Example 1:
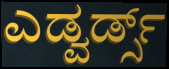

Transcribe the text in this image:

ಎಡ್ವರ್ಡ್ಸ್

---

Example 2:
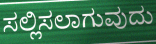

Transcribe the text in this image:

ಸಲ್ಲಿಸಲಾಗುವುದು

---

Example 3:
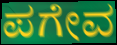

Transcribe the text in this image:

ಪಗೇವ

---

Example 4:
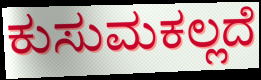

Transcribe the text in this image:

ಕುಸುಮಕಲ್ಲದೆ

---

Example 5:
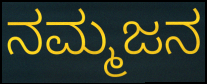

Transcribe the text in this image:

ನಮ್ಮಜನ